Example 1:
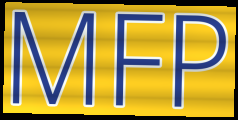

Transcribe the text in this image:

MFP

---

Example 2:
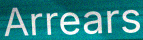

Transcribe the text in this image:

Arrears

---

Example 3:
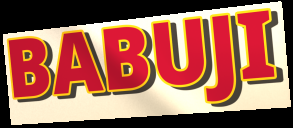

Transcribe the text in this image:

BABUJI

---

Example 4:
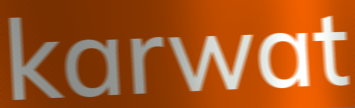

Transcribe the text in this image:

karwat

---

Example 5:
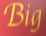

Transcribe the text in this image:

Big